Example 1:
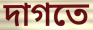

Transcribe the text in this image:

দাগতে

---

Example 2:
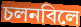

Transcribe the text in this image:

চলনবিলে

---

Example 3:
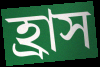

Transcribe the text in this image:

হ্রাস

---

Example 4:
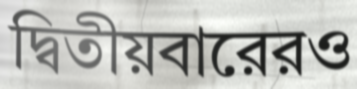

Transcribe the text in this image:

দ্বিতীয়বারেরও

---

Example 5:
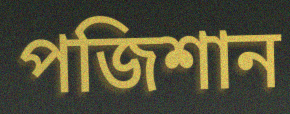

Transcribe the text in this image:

পজিশান